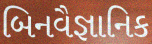
બિનવૈજ્ઞાનિક